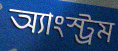
অ্যাংস্ট্রম